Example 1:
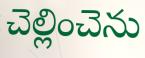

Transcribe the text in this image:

చెల్లించెను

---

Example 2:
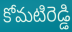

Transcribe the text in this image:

కోమటిరెడ్డి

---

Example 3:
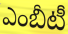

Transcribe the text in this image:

ఎంబీటీ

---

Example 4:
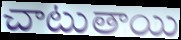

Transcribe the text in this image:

చాటుతాయి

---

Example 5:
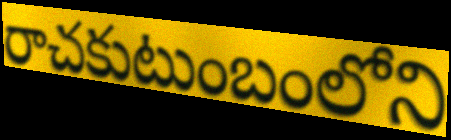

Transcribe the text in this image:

రాచకుటుంబంలోని